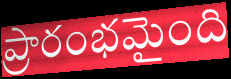
ప్రారంభమైంది